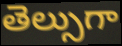
తెల్సుగా